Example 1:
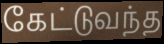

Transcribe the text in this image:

கேட்டுவந்த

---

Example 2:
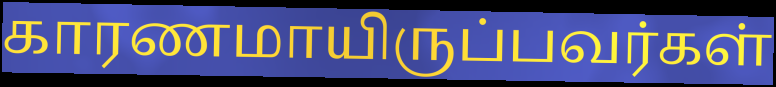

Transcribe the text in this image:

காரணமாயிருப்பவர்கள்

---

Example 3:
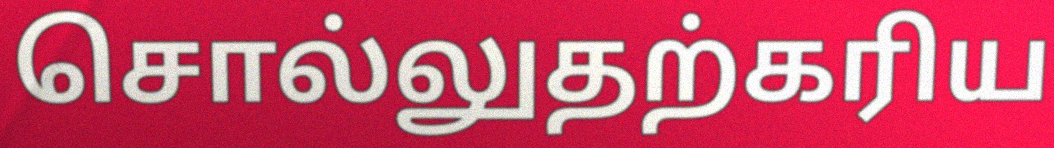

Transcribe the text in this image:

சொல்லுதற்கரிய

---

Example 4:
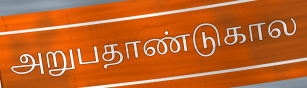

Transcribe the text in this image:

அறுபதாண்டுகால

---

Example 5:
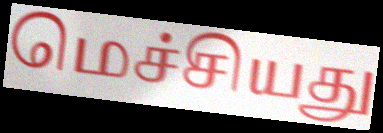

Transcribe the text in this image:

மெச்சியது